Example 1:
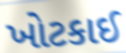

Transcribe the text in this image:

ખોટકાઈ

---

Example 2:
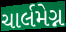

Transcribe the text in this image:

ચાર્લમેગ્ન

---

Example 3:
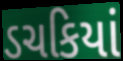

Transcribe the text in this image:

ડચકિયાં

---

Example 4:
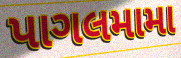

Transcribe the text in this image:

પાગલમામા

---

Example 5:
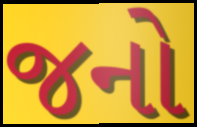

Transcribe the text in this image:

જનો